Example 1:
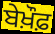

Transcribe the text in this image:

ਬੇਖ਼ੌਫ਼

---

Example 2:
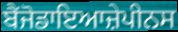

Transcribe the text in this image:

ਬੈਂਜੋਡਾਇਆਜ਼ੇਪੀਨਸ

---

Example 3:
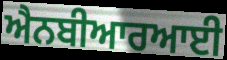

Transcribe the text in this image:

ਐਨਬੀਆਰਆਈ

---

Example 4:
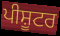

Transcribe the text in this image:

ਪੀਸ਼ੂਟਰ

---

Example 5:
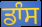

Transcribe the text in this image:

ਡਾੰਸ